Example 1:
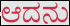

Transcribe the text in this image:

ಆದನು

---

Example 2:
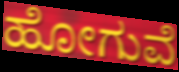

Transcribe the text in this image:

ಹೋಗುವೆ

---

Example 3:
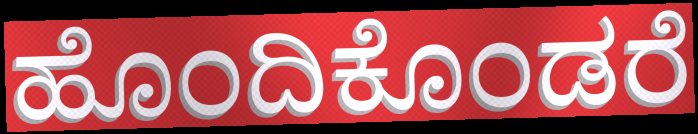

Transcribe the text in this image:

ಹೊಂದಿಕೊಂಡರೆ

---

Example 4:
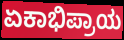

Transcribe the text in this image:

ಏಕಾಭಿಪ್ರಾಯ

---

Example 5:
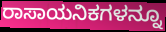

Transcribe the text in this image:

ರಾಸಾಯನಿಕಗಳನ್ನೂ